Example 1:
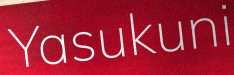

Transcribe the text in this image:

Yasukuni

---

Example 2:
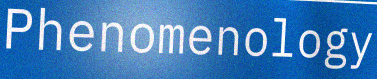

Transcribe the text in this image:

Phenomenology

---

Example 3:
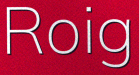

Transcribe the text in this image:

Roig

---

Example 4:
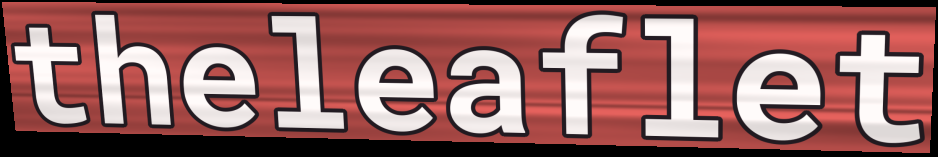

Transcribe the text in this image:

theleaflet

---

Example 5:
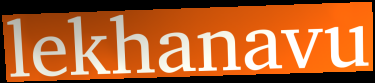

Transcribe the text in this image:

lekhanavu